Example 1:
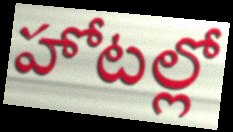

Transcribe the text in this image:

హోటల్లో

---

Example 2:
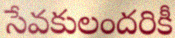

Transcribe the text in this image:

సేవకులందరికీ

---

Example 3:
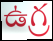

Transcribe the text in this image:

ఉగ్ర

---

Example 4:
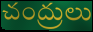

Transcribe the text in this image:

చంద్రులు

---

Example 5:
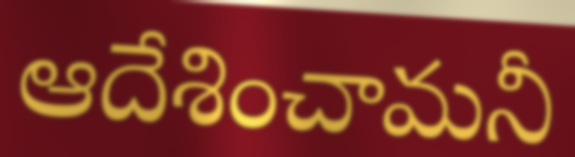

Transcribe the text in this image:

ఆదేశించామనీ